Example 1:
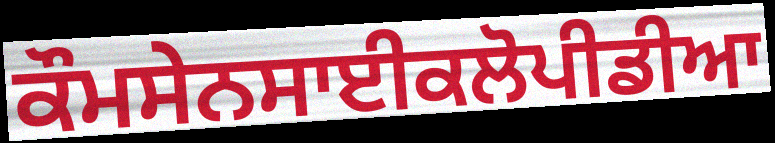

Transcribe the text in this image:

ਕੌਮਸੇਨਸਾਈਕਲੋਪੀਡੀਆ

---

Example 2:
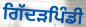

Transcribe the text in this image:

ਗਿੱਦੜਪਿੰਡੀ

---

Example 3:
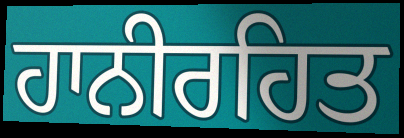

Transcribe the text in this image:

ਹਾਨੀਰਹਿਤ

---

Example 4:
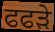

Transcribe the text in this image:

ਫਫਡ਼ੇ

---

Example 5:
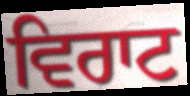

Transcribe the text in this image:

ਵਿਰਾਟ